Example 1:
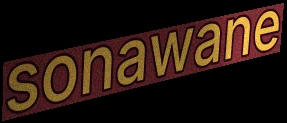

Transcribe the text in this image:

sonawane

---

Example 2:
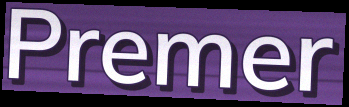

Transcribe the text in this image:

Premer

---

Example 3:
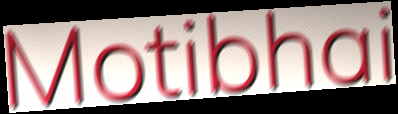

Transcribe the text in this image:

Motibhai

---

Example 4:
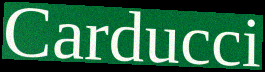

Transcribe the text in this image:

Carducci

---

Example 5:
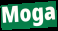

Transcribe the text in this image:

Moga